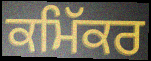
ਕਮਿੱਕਰ